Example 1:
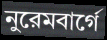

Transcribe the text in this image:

নুরেমবার্গে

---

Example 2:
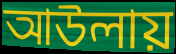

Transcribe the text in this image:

আউলায়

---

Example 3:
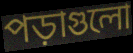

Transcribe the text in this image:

পড়াগুলো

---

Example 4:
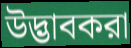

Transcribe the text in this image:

উদ্ভাবকরা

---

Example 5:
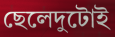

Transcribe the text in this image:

ছেলেদুটোই